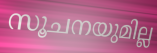
സൂചനയുമില്ല